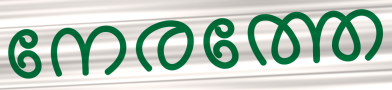
നേരത്തേ